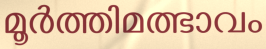
മൂർത്തിമത്ഭാവം